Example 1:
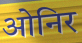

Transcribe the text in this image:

ओनिर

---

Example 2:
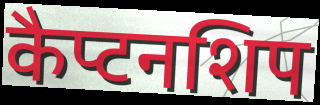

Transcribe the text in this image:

कैप्टनशिप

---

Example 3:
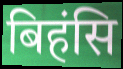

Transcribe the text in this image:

बिहंसि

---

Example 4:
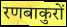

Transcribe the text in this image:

रणबाकुरों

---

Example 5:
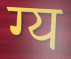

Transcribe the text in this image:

ग्य